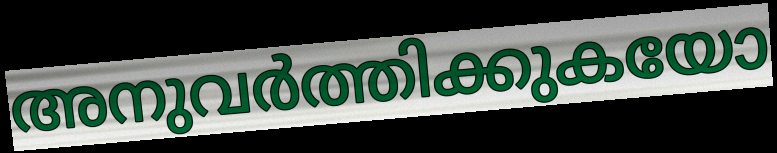
അനുവർത്തിക്കുകയോ